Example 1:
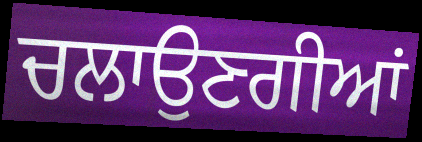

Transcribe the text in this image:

ਚਲਾਉਣਗੀਆਂ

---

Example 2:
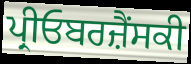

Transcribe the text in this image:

ਪ੍ਰੀਓਬਰਜ਼ੈਂਸਕੀ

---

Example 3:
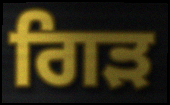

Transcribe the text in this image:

ਗਿੜ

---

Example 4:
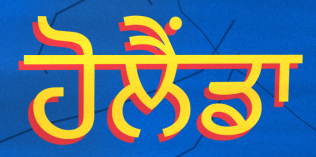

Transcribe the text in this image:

ਹੋਲੈਂਡਾ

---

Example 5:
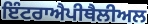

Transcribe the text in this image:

ਇੰਟਰਾਐਪੀਥੈਲੀਅਲ